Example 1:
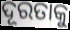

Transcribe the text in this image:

ଦୂରତାକୁ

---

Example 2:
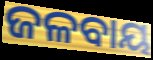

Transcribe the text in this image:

ଜଳବାୟ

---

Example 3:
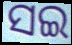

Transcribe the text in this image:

ସଇ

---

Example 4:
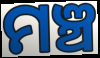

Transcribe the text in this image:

ମଞ୍ଚ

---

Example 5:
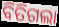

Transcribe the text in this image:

ବିତିଗଲା